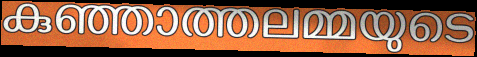
കുഞ്ഞാത്തലമ്മയുടെ